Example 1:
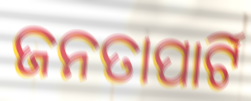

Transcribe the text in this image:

ଜନତାପାର୍ଟି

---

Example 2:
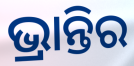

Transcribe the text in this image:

ଭ୍ରାନ୍ତିର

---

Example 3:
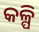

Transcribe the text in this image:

କଳ୍ପି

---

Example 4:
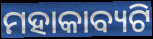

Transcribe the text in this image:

ମହାକାବ୍ୟଟି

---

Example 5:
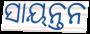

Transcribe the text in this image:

ସାୟନ୍ତନ